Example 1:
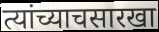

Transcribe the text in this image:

त्यांच्याचसारखा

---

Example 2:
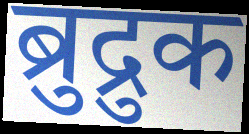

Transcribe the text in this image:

ब्रुद्रुक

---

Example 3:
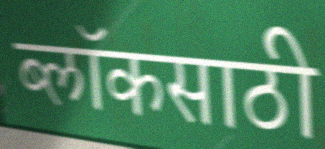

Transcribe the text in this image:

ब्लॉकसाठी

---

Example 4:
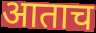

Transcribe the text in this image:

आताच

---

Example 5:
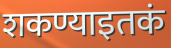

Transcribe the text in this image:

शकण्याइतकं